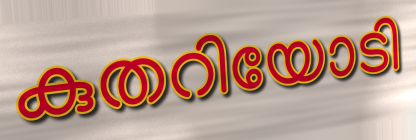
കുതറിയോടി